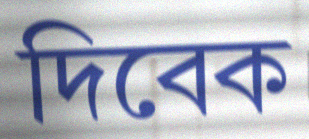
দিবেক